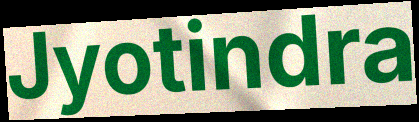
Jyotindra